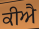
ਕੀਐ